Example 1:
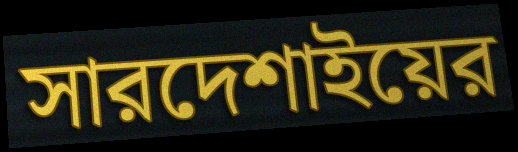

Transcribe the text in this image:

সারদেশাইয়ের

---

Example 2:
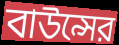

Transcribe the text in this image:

বাউন্সের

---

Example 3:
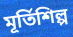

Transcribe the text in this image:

মূর্তিশিল্প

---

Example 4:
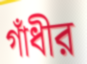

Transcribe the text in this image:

গাঁধীর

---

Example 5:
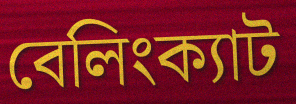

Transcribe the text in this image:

বেলিংক্যাট